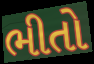
ભીતો